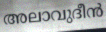
അലാവുദീൻ